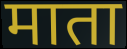
माता